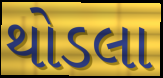
થોડલા